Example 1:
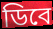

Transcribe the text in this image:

ডিবে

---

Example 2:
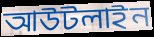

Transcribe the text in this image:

আউটলাইন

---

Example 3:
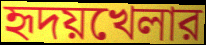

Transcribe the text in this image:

হৃদয়খেলার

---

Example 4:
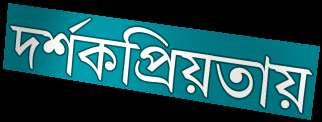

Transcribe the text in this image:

দর্শকপ্রিয়তায়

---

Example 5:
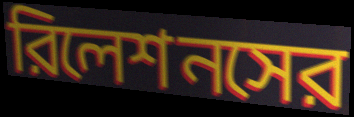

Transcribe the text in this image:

রিলেশনসের